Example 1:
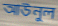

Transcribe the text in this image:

আউনুল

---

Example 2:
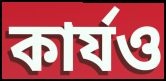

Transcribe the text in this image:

কার্যও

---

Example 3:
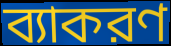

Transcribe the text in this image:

ব্যাকরণ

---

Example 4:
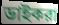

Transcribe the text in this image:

ডাইকরা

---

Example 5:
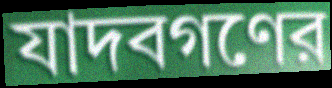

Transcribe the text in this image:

যাদবগণের